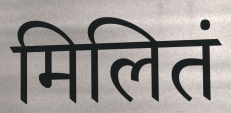
मिलितं